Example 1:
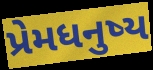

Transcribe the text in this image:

પ્રેમધનુષ્ય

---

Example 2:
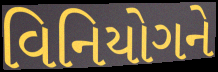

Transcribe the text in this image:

વિનિયોગને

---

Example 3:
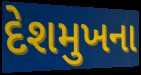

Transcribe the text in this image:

દેશમુખના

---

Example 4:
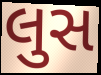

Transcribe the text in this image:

લુસ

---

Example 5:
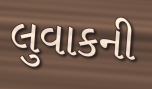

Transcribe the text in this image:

લુવાકની